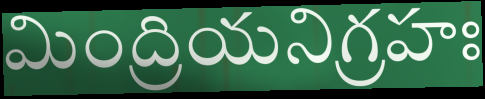
మింద్రియనిగ్రహః